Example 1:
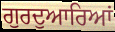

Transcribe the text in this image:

ਗੁਰਦੁਆਰਿਆਂ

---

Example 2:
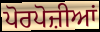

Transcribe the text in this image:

ਪੋਰਪੋਜ਼ੀਆਂ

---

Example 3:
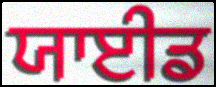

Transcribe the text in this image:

ਯਾਈਡ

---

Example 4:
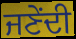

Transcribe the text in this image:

ਜਣੇਂਦੀ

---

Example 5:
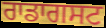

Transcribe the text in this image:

ਰਾਡਾਗਸਟ